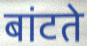
बांटते